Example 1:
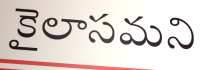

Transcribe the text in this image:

కైలాసమని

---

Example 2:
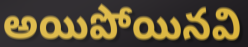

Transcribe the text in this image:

అయిపోయినవి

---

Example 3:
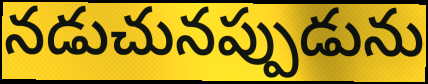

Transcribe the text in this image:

నడుచునప్పుడును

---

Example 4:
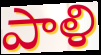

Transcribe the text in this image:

పాళి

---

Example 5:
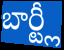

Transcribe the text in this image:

బార్ట్లీ